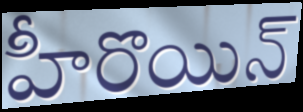
హీరొయిన్